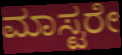
ಮಾಸ್ಟರೇ